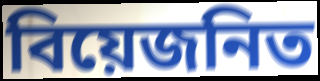
বিয়েজনিত